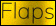
Flaps